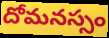
దోమనస్సం